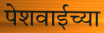
पेशवाईच्या